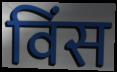
विंस